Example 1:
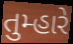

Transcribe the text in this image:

તુમ્હારે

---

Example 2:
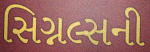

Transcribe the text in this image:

સિગ્નલ્સની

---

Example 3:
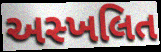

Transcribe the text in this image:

અસ્ખલિત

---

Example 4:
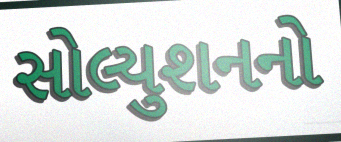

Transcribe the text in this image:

સોલ્યુશનનો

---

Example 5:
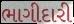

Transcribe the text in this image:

ભાગીદારી